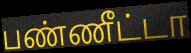
பண்ணீட்டா